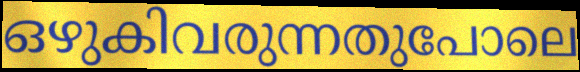
ഒഴുകിവരുന്നതുപോലെ